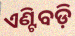
ଏଣ୍ଟିବଡ଼ି